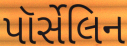
પૉર્સેલિન